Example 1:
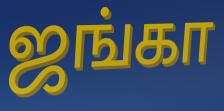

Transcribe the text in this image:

ஜங்கா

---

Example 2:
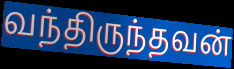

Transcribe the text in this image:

வந்திருந்தவன்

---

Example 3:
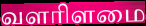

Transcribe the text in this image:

வளரிளமை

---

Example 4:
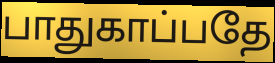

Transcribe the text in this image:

பாதுகாப்பதே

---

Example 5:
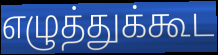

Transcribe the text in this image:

எழுத்துக்கூட